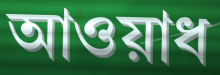
আওয়াধ